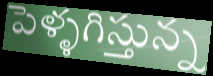
పెళ్ళగిస్తున్న